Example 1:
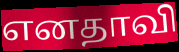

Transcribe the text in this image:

எனதாவி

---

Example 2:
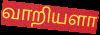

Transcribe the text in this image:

வாறியளா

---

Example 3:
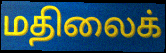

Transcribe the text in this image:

மதிலைக்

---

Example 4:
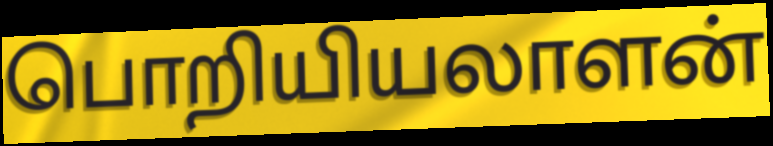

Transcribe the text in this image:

பொறியியலாளன்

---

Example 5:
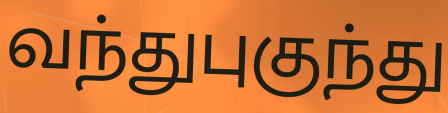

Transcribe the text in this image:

வந்துபுகுந்து